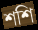
শশি